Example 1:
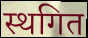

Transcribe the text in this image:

स्थगित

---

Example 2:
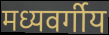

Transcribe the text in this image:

मध्यवर्गीय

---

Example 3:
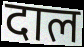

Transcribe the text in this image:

दाल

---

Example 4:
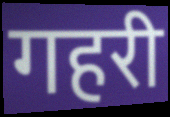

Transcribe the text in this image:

गहरी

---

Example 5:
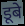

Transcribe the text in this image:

डूबे